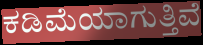
ಕಡಿಮೆಯಾಗುತ್ತಿವೆ